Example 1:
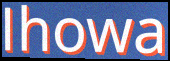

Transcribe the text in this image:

Ihowa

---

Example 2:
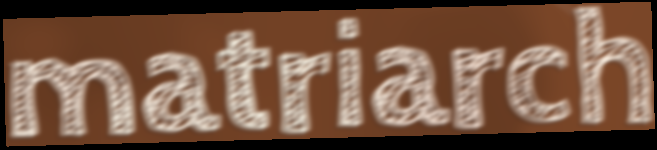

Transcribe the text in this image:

matriarch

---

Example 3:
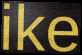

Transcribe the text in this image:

ike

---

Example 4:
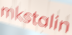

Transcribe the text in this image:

mkstalin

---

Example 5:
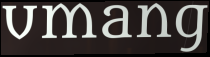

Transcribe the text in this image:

umang